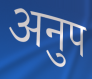
अनुप